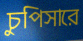
চুপিসারে